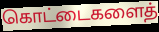
கொட்டைகளைத்